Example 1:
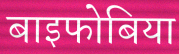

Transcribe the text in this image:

बाइफोबिया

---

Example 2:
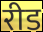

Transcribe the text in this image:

रीड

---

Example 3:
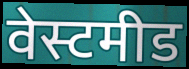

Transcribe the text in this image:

वेस्टमीड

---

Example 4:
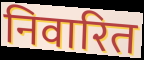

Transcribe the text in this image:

निवारित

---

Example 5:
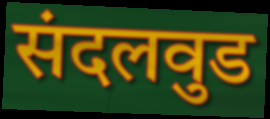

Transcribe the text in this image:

संदलवुड